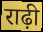
राढ़ी